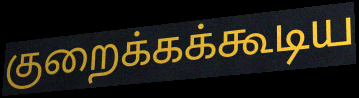
குறைக்கக்கூடிய